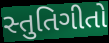
સ્તુતિગીતો